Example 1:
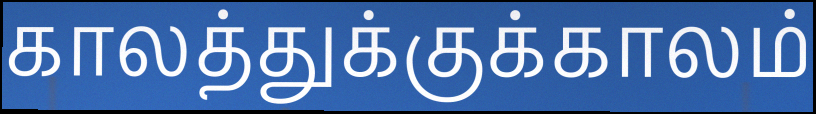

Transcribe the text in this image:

காலத்துக்குக்காலம்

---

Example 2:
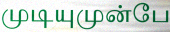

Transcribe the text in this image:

முடியுமுன்பே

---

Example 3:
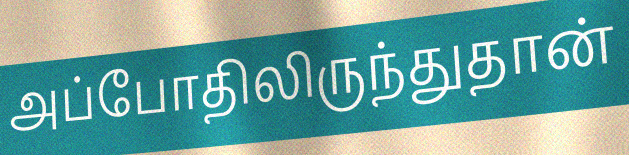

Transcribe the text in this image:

அப்போதிலிருந்துதான்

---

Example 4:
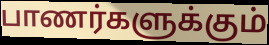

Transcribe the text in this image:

பாணர்களுக்கும்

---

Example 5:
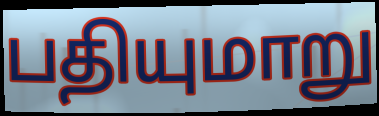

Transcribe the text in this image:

பதியுமாறு